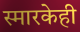
स्मारकेही